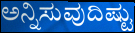
ಅನ್ನಿಸುವುದಿಷ್ಟು